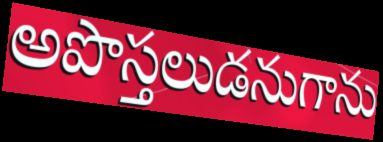
అపొస్తలుడనుగాను